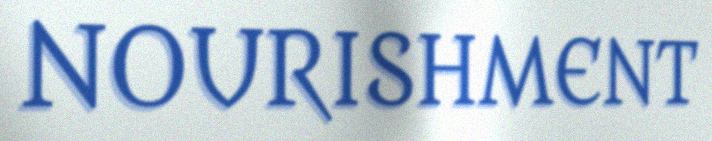
NOURISHMENT